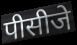
पीसीजे